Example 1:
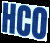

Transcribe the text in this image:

HCO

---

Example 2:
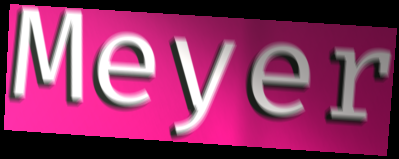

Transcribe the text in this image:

Meyer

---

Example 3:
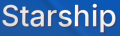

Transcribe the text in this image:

Starship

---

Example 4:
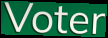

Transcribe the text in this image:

Voter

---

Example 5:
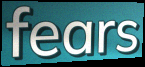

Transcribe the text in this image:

fears